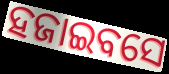
ହଜାଇବସେ